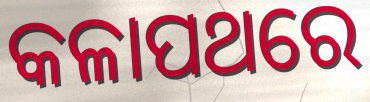
କଳାପଥରେ